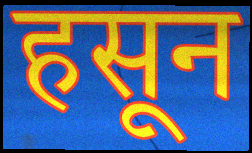
हसून